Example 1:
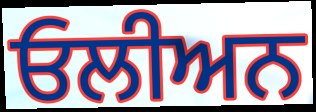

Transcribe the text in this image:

ਓਲੀਅਨ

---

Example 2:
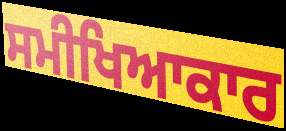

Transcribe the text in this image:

ਸਮੀਖਿਆਕਾਰ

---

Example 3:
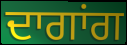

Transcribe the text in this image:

ਦਾਗਾਂਗ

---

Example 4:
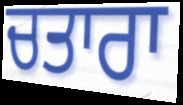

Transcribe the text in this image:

ਚਤਾਰਾ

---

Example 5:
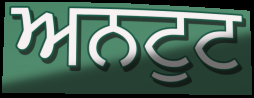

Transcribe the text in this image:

ਅਨਟੁਟ